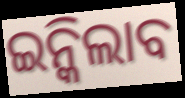
ଇନ୍କିଲାବ